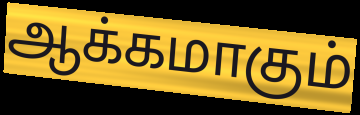
ஆக்கமாகும்